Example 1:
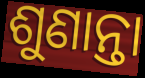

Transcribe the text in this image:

ଶୁଣାନ୍ତା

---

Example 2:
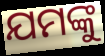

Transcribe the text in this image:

ଯମଙ୍କୁ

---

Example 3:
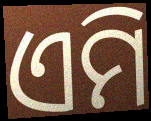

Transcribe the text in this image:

ଏମି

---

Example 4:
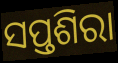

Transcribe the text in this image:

ସପ୍ତଶିରା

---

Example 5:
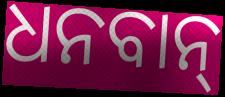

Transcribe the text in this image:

ଧନବାନ୍